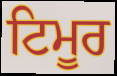
ਟਿਮੂਰ